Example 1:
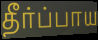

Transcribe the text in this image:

தீர்ப்பாய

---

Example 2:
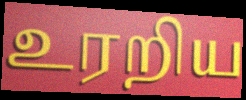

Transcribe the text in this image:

உரறிய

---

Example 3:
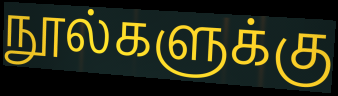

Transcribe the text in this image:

நூல்களுக்கு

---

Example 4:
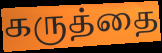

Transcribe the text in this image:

கருத்தை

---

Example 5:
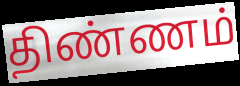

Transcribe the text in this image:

திண்ணம்